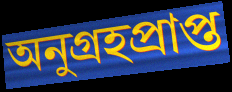
অনুগ্রহপ্রাপ্ত